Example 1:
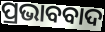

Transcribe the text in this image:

ପ୍ରଭାବବାଦ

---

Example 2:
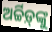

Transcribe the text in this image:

ଅର୍ଚ୍ଚିଡ଼୍‌ଙ୍କୁ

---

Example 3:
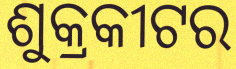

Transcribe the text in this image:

ଶୁକ୍ରକୀଟର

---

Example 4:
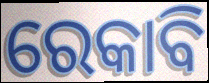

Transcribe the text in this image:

ରେକାବି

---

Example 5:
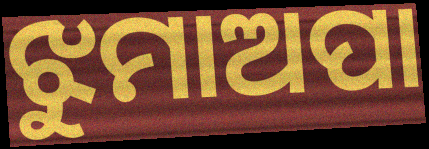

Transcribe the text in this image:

ଝୁମାଅପା